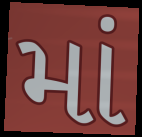
માં